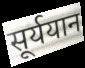
सूर्ययान